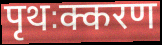
पृथःक्करण